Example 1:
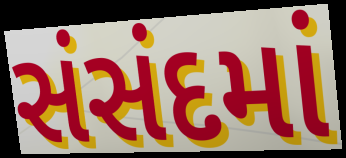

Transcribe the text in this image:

સંસંદમાં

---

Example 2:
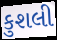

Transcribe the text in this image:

કુશલી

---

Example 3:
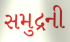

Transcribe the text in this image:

સમુદ્રની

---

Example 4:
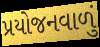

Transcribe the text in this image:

પ્રયોજનવાળું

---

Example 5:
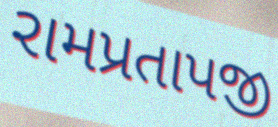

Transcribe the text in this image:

રામપ્રતાપજી